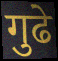
गुढे